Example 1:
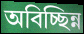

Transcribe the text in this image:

অবিচ্ছিন্ন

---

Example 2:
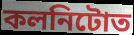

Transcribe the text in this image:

কলনিটোত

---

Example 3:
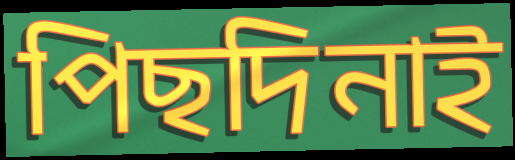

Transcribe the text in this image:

পিছদিনাই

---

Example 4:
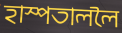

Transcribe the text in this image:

হাস্পতাললৈ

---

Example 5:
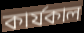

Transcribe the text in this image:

কাৰ্যকাল